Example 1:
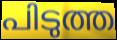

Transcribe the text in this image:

പിടുത്ത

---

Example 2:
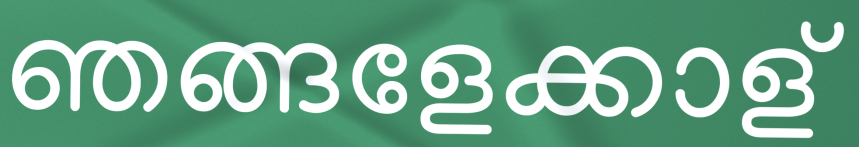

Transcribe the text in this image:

ഞങ്ങളേക്കാള്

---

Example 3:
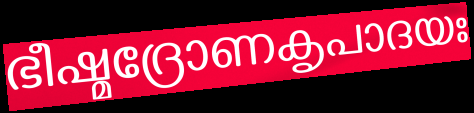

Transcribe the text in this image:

ഭീഷ്മദ്രോണകൃപാദയഃ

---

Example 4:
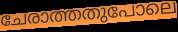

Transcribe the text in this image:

ചേരാത്തതുപോലെ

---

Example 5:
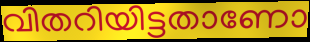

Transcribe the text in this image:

വിതറിയിട്ടതാണോ